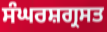
ਸੰਘਰਸ਼ਗ੍ਰਸਤ